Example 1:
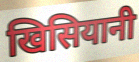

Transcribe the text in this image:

खिसियानी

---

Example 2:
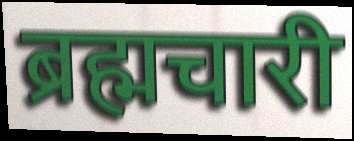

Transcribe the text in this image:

ब्रह्मचारी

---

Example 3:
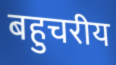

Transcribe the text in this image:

बहुचरीय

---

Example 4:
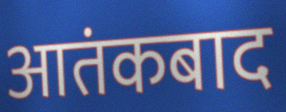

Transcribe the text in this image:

आतंकबाद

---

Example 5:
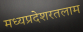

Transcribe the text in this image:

मध्यप्रदेशरतलाम